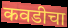
कवडीचा